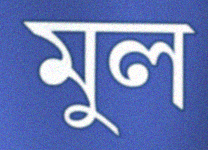
মুল